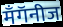
मँगॅनीज